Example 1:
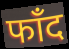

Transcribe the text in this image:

फाँद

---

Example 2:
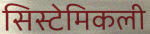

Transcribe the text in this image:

सिस्टेमिकली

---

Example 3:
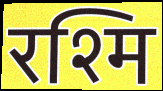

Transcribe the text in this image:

रश्मि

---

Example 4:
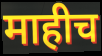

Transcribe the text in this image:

माहीच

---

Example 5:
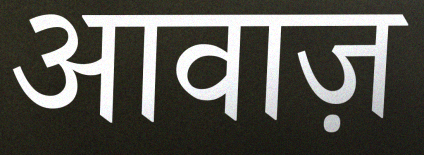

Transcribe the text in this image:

आवाज़